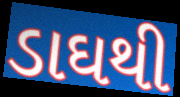
ડાઘથી